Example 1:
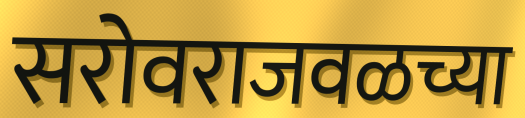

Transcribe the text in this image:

सरोवराजवळच्या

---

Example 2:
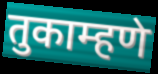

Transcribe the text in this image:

तुकाम्हणे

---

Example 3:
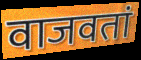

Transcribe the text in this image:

वाजवतां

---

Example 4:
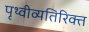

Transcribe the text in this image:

पृथ्वीव्यतिरिक्त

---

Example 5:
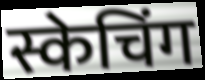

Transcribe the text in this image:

स्केचिंग